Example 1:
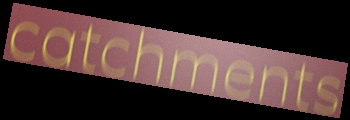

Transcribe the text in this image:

catchments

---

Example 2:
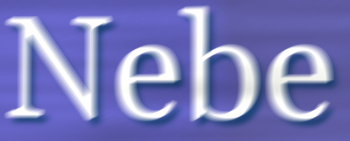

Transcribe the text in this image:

Nebe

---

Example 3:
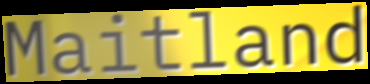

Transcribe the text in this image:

Maitland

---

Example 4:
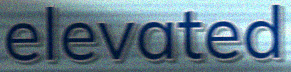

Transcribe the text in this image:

elevated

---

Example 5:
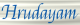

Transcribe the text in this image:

Hrudayam